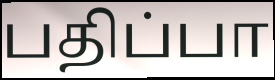
பதிப்பா